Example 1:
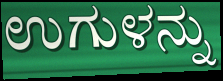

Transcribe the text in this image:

ಉಗುಳನ್ನು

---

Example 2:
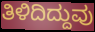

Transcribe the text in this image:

ತಿಳಿದಿದ್ದುವು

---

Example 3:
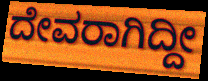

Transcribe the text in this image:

ದೇವರಾಗಿದ್ದೀ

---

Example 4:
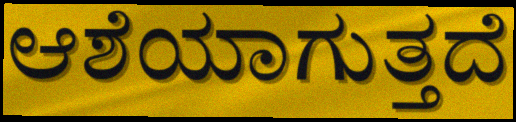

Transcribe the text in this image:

ಆಶೆಯಾಗುತ್ತದೆ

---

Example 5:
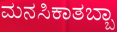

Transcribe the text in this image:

ಮನಸಿಕಾತಬ್ಬಾ